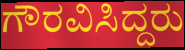
ಗೌರವಿಸಿದ್ದರು